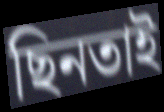
ছিনতাই